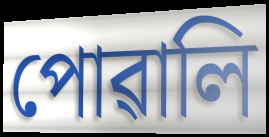
পোৱালি